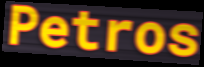
Petros